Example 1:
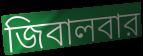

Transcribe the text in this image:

জিবালবার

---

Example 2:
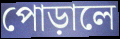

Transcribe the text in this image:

পোড়ালে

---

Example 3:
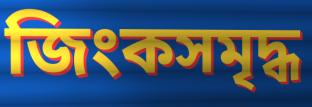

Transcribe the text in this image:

জিংকসমৃদ্ধ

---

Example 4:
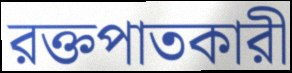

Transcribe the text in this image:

রক্তপাতকারী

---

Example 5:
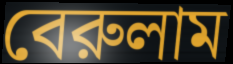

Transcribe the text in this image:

বেরুলাম